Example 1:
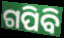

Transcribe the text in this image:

ଗପିବି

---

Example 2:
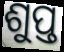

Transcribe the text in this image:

ଶୁପ୍ତ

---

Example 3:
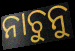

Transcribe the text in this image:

ନାଚୁନୁ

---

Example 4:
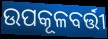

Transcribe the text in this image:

ଉପକୂଳବର୍ତ୍ତୀ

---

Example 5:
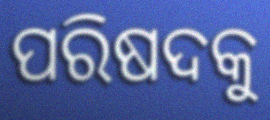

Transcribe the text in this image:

ପରିଷଦକୁ